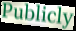
Publicly